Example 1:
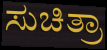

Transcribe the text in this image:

ಸುಚಿತ್ರಾ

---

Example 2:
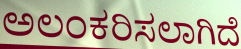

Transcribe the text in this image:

ಅಲಂಕರಿಸಲಾಗಿದೆ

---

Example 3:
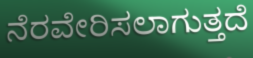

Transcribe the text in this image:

ನೆರವೇರಿಸಲಾಗುತ್ತದೆ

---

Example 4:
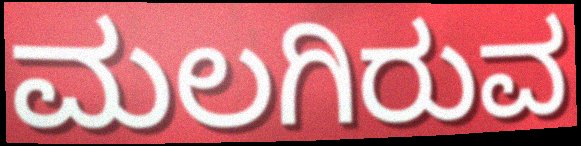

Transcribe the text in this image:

ಮಲಗಿರುವ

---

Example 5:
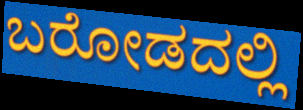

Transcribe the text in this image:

ಬರೋಡದಲ್ಲಿ